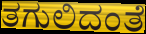
ತಗುಲಿದಂತೆ